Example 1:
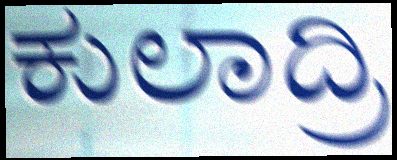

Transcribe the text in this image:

ಕುಲಾದ್ರಿ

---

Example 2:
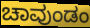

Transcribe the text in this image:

ಚಾವುಂಡಂ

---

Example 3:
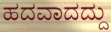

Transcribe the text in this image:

ಹದವಾದದ್ದು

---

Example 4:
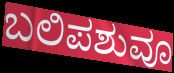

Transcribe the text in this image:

ಬಲಿಪಶುವೂ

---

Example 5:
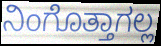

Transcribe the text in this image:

ನಿಂಗೊತ್ತಾಗಲ್ಲ